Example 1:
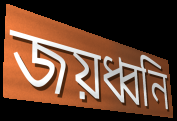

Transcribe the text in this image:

জয়ধ্বনি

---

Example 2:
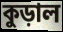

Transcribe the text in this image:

কুড়াল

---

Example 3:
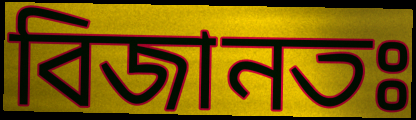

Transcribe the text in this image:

বিজানতঃ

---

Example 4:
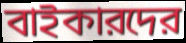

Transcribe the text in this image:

বাইকারদের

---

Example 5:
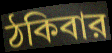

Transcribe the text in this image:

ঠকিবার